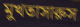
মুখতাসারুস